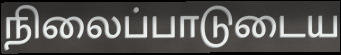
நிலைப்பாடுடைய